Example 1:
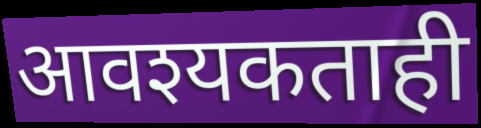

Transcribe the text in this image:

आवश्यकताही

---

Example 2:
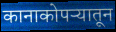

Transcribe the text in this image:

कानाकोपऱ्यातून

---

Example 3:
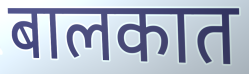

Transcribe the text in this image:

बालकात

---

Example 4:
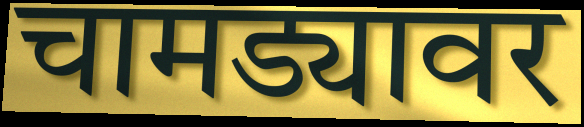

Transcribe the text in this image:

चामड्यावर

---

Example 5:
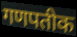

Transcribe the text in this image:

गणपतीक